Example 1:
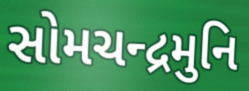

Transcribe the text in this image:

સોમચન્દ્રમુનિ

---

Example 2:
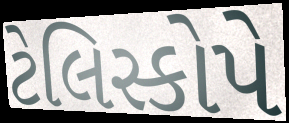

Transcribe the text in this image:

ટેલિસ્કોપે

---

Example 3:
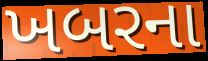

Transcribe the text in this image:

ખબરના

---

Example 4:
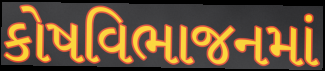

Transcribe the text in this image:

કોષવિભાજનમાં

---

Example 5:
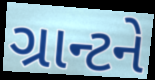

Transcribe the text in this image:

ગ્રાન્ટને